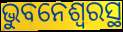
ଭୁବନେଶ୍ଵରସ୍ଥ